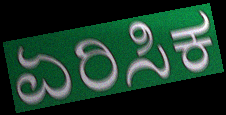
ಏರಿಸಿಕ